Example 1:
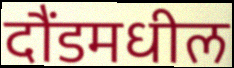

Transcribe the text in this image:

दौंडमधील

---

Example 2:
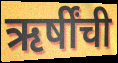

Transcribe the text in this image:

ऋर्षींची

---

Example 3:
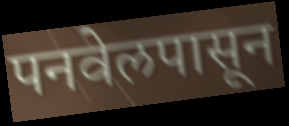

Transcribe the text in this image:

पनवेलपासून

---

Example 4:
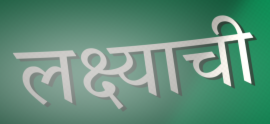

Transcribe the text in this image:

लक्ष्याची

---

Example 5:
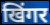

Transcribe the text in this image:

खिंगर